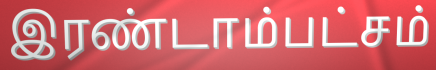
இரண்டாம்பட்சம்